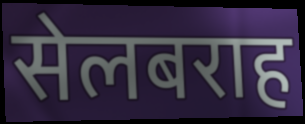
सेलबराह